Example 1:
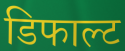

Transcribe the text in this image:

डिफाल्ट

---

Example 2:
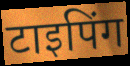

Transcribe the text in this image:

टाइपिंग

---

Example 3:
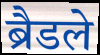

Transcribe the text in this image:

ब्रैडले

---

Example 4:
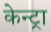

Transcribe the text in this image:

केन्ट्रा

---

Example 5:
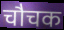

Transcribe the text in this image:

चौचक